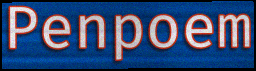
Penpoem